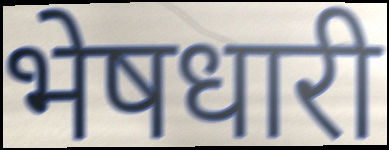
भेषधारी